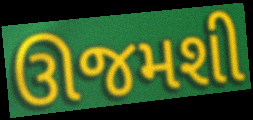
ઊજમશી